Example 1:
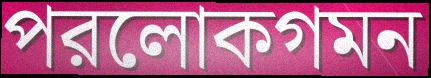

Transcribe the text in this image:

পরলোকগমন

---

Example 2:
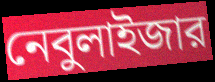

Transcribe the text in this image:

নেবুলাইজার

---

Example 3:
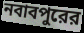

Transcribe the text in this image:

নবাবপুরের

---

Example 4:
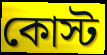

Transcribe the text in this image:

কোস্ট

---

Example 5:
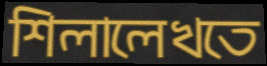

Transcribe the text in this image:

শিলালেখতে